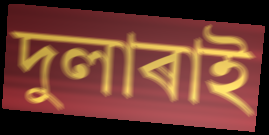
দুলাৰাই